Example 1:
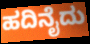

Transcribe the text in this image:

ಹದಿನೈದು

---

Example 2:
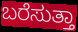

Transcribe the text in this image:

ಬರೆಸುತ್ತಾ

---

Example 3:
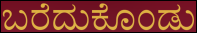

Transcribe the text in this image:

ಬರೆದುಕೊಂಡು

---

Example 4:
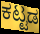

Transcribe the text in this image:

ಕಟ್ಟಡ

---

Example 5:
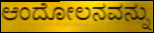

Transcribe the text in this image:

ಆಂದೋಲನವನ್ನು